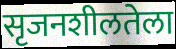
सृजनशीलतेला